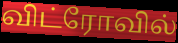
விட்ரோவில்